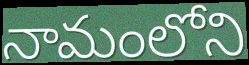
నామంలోని